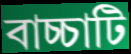
বাচ্চাটি